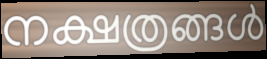
നക്ഷത്രങ്ങൾ